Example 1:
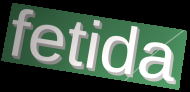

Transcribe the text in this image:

fetida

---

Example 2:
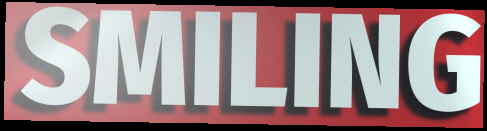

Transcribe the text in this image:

SMILING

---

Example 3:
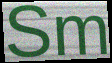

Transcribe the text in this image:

Sm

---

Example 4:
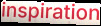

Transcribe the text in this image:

inspiration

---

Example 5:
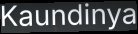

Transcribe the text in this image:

Kaundinya